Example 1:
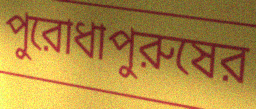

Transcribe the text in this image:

পুরোধাপুরুষের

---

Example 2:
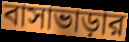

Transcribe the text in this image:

বাসাভাড়ার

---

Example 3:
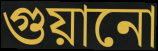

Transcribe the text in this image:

গুয়ানো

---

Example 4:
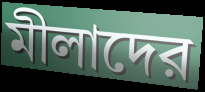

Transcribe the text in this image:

মীলাদের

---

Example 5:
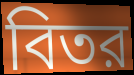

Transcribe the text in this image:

বিতর